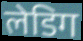
लेडिग